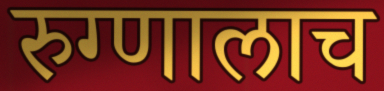
रुग्णालाच